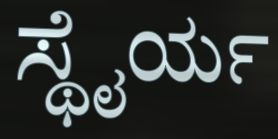
ಸ್ಥೈರ್ಯ